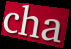
cha